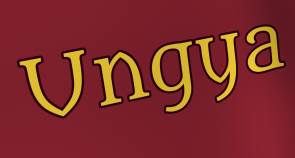
Ungya